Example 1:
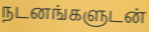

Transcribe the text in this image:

நடனங்களுடன்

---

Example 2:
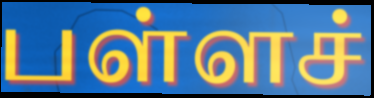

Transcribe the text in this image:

பள்ளச்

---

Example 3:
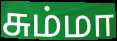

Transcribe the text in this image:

சும்மா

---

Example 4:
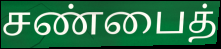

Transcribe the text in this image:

சண்பைத்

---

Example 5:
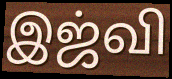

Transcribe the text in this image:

இஜ்வி